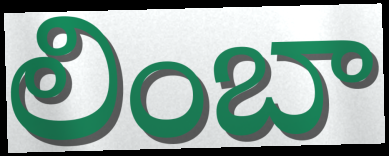
లింబా